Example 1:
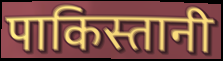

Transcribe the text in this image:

पाकिस्तानी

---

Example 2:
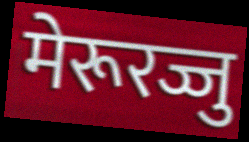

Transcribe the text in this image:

मेरूरज्जु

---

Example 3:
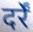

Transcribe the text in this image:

दर्रें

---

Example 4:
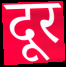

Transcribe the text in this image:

दूर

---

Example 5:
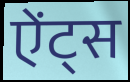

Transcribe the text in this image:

ऐंट्स